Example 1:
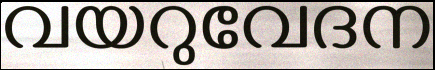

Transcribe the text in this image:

വയറുവേദന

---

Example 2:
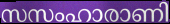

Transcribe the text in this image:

സസംഹാരാണി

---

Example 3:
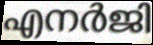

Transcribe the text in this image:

എനർജി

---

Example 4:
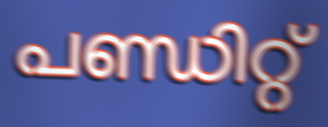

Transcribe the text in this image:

പണ്ഡിറ്റ്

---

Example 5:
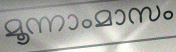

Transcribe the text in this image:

മൂന്നാംമാസം